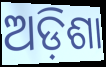
ଅଡ଼ିଶା